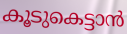
കൂടുകെട്ടാൻ